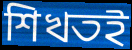
শিখতই